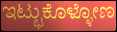
ಇಟ್ಟುಕೊಳ್ಳೋಣ